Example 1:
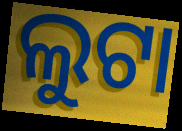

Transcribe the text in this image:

ଲୁଟା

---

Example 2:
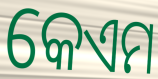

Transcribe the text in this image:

କେଏମ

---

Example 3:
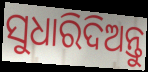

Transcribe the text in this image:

ସୁଧାରିଦିଅନ୍ତୁ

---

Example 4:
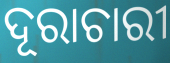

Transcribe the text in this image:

ଦୂରାଚାରୀ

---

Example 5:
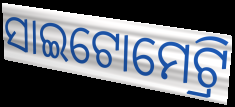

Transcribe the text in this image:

ସାଇଟୋମେଟ୍ରି